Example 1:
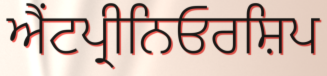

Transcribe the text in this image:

ਐਂਟਪ੍ਰੀਨਿਓਰਸ਼ਿਪ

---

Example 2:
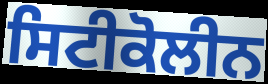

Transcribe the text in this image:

ਸਿਟੀਕੋਲੀਨ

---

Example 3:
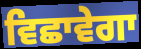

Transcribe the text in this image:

ਵਿਛਾਵੇਗਾ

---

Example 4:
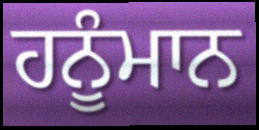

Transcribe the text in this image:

ਹਨੂੰਮਾਨ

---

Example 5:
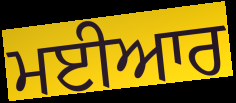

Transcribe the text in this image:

ਮਈਆਰ